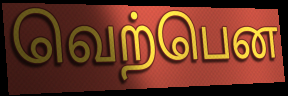
வெற்பென